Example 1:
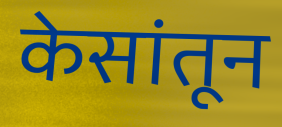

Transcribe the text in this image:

केसांतून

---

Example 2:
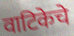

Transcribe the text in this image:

वाटिकेचे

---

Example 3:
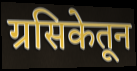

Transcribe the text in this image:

ग्रसिकेतून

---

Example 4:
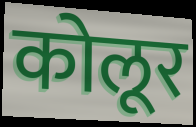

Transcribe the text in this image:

कोलूर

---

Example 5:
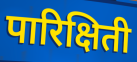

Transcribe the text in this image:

पारिक्षिती